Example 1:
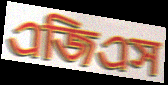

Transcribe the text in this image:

এজিএস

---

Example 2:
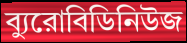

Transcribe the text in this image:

ব্যুরোবিডিনিউজ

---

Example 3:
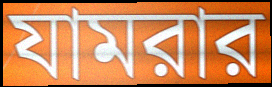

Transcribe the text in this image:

যামরার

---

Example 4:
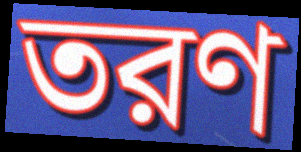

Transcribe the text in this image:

তরণ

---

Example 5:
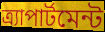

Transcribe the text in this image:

ত্র্যাপার্টমেন্ট